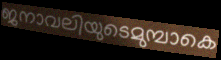
ജനാവലിയുടെമുമ്പാകെ